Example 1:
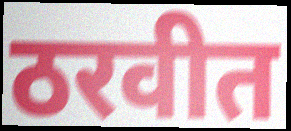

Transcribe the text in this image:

ठरवीत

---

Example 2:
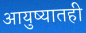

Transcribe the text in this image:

आयुष्यातही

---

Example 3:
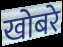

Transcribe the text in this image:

खोबरे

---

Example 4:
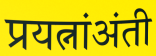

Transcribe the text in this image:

प्रयत्नांअंती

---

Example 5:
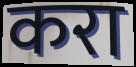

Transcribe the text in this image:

करा